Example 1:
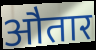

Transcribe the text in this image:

औतार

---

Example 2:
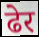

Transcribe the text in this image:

ढेर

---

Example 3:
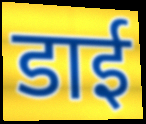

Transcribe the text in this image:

डाई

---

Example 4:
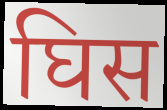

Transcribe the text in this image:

घिस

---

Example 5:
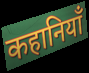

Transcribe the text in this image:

कहानियाँ